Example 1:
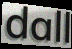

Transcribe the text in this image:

dall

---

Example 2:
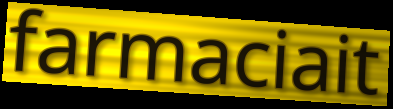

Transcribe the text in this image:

farmaciait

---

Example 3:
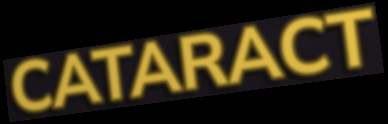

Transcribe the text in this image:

CATARACT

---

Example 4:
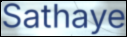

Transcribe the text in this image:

Sathaye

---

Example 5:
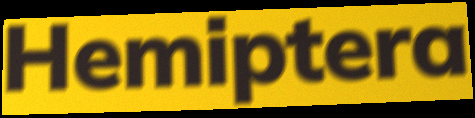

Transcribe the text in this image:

Hemiptera